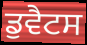
ਡੁਵੈਟਸ